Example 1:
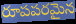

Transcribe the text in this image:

రూపపరమైన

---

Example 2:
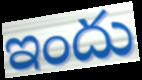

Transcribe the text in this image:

ఇందు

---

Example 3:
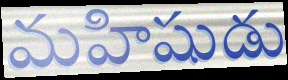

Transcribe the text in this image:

మహిషుడు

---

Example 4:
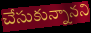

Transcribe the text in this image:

చేసుకున్నానని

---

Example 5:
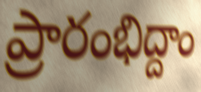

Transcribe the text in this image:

ప్రారంభిద్దాం